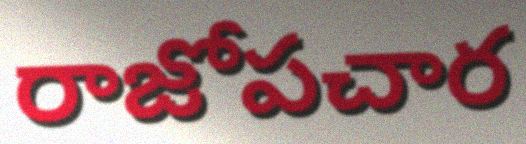
రాజోపచార